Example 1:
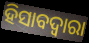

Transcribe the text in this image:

ହିସାବଦ୍ଵାରା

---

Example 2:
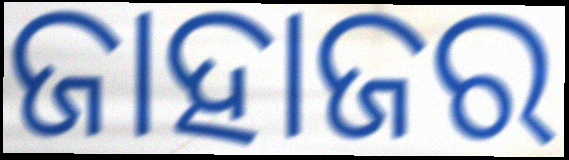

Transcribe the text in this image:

ଜାହାଜର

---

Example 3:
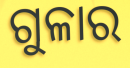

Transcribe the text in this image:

ଗୁଳାର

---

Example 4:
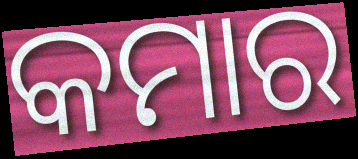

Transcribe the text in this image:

କମାର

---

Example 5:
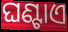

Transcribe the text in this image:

ଘଣ୍ଟାଏ